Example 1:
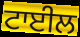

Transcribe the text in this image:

ਟਾਈਲ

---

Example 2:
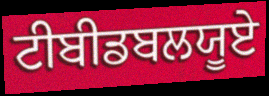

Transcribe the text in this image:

ਟੀਬੀਡਬਲਯੂਏ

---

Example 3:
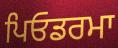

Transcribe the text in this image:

ਪਿਓਡਰਮਾ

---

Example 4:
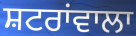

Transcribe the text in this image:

ਸ਼ਟਰਾਂਵਾਲਾ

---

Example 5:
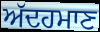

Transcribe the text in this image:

ਅੱਦਹਮਾਣ